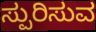
ಸ್ಪುರಿಸುವ